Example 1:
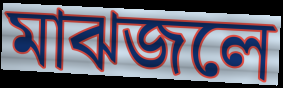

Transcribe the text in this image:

মাঝজলে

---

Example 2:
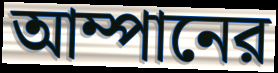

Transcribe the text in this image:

আম্পানের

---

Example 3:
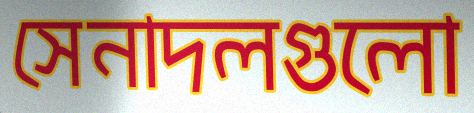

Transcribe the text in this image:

সেনাদলগুলো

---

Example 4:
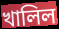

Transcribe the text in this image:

খালিল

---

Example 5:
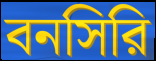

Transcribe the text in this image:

বনসিরি